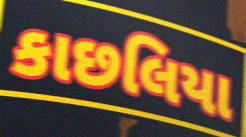
કાછલિયા